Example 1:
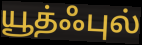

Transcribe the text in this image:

யூத்ஃபுல்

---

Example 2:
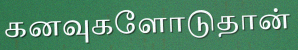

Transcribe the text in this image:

கனவுகளோடுதான்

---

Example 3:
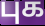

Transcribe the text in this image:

புக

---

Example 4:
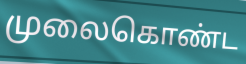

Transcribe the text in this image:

முலைகொண்ட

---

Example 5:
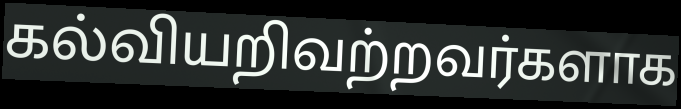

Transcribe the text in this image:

கல்வியறிவற்றவர்களாக